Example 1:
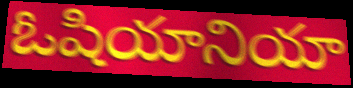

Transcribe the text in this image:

ఓషియానియా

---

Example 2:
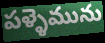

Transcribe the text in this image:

పళ్ళెమును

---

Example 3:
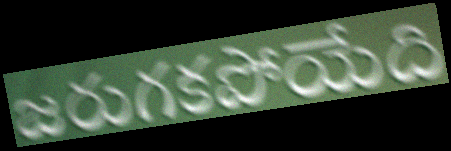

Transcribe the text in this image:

జరుగకపోయేది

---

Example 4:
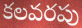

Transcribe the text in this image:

కలవరపు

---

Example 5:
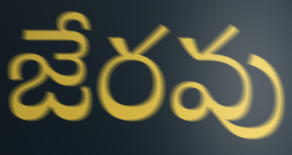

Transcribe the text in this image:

జేరవు